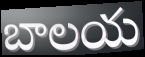
బాలయ